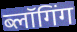
ब्लॉगिंग